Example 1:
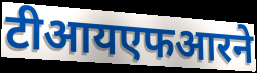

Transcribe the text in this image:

टीआयएफआरने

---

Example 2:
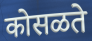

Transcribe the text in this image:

कोसळते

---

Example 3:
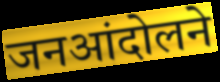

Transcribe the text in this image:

जनआंदोलने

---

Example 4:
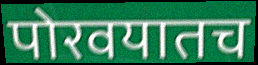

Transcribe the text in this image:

पोरवयातच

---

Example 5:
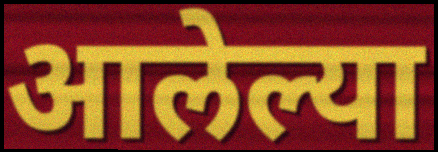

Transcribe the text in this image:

आलेल्या